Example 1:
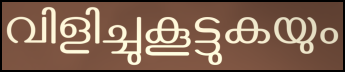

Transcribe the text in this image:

വിളിച്ചുകൂട്ടുകയും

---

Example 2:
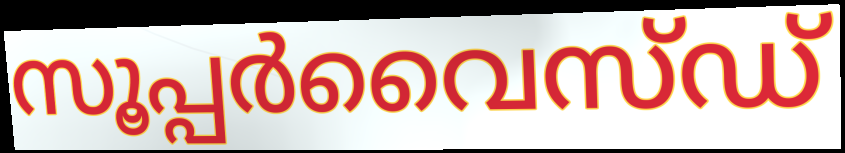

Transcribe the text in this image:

സൂപ്പർവൈസ്ഡ്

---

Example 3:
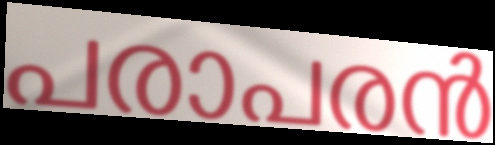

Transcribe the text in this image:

പരാപരൻ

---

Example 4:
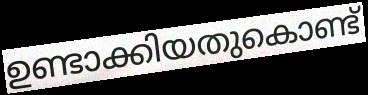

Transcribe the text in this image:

ഉണ്ടാക്കിയതുകൊണ്ട്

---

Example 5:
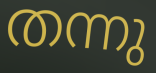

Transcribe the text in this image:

തന്നു